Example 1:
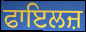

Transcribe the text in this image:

ਫਾਇਲਜ਼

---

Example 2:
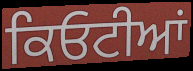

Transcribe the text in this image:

ਕਿਓਟੀਆਂ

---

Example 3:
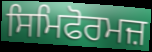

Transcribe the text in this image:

ਸਿਮਿਫੋਰਮਜ਼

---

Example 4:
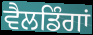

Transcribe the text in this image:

ਵੈਲਡਿੰਗਾਂ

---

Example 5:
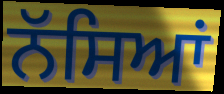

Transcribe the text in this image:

ਨੱਸਿਆਂ